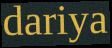
dariya